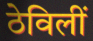
ठेविलीं